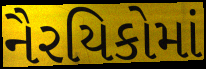
નૈરયિકોમાં